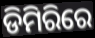
ଡିମିରିରେ